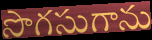
సొగసుగాను